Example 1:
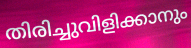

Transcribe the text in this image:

തിരിച്ചുവിളിക്കാനും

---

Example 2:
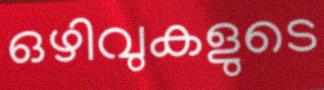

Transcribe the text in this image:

ഒഴിവുകളുടെ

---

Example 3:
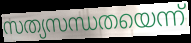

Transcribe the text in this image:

സത്യസന്ധതയെന്ന്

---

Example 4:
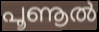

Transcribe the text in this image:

പൂണൂൽ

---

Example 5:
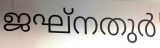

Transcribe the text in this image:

ജഘ്നതുർ